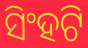
ସିଂହଟି